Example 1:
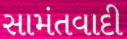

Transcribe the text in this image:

સામંતવાદી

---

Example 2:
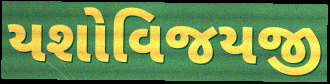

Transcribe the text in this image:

યશોવિજયજી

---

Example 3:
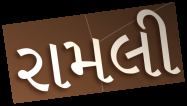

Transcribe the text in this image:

રામલી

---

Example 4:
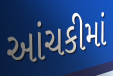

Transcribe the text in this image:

આંચકીમાં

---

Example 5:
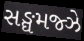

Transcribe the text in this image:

સઙ્ઘમજ્ઝે